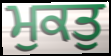
ਮੁਕਤੁ